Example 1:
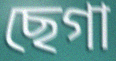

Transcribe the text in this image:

ছেগা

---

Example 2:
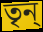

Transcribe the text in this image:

তৃন্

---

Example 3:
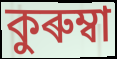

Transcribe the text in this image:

কুৰুম্বা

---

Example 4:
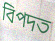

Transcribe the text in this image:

বিপদত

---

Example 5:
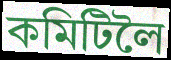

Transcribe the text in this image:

কমিটিলৈ